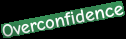
Overconfidence